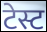
टेस्ट